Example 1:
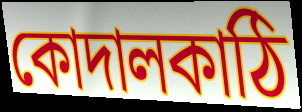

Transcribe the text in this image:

কোদালকাঠি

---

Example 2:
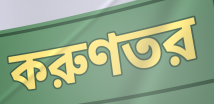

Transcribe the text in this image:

করুণতর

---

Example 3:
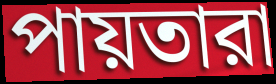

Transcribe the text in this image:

পায়তারা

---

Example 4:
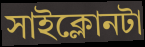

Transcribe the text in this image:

সাইক্লোনটা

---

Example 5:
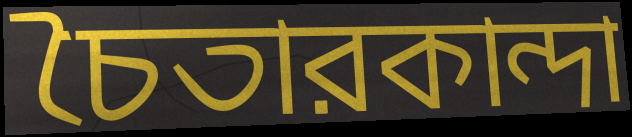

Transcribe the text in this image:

চৈতারকান্দা